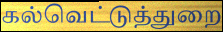
கல்வெட்டுத்துறை